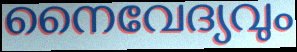
നൈവേദ്യവും